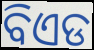
ବିଏଡ